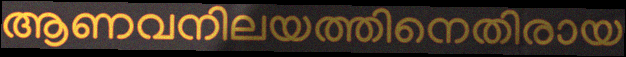
ആണവനിലയത്തിനെതിരായ